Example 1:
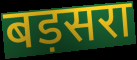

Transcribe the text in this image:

बड़सरा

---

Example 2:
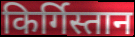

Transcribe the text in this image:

किर्गिस्तान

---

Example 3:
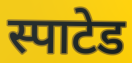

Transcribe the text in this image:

स्पाटेड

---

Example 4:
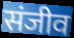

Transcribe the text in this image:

संजीव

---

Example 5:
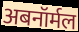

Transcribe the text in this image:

अबनॉर्मल